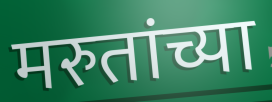
मरुतांच्या